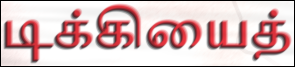
டிக்கியைத்